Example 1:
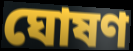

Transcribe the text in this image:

ঘোষণ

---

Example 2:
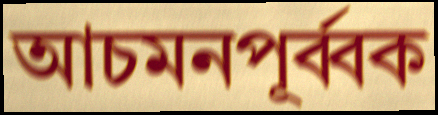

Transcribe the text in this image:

আচমনপূর্ব্বক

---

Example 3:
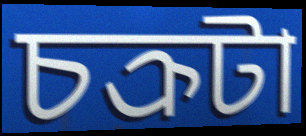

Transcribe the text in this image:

চক্রটা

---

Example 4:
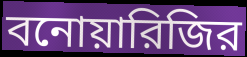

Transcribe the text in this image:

বনোয়ারিজির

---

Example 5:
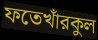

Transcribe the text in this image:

ফতেখাঁরকুল